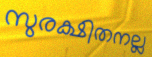
സുരക്ഷിതനല്ല